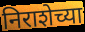
निराशेच्या